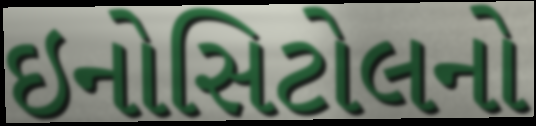
ઇનોસિટોલનો